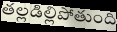
తల్లడిల్లిపోతుంది